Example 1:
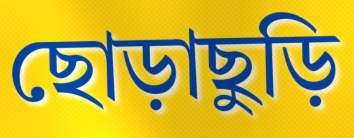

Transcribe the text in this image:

ছোড়াছুড়ি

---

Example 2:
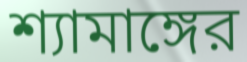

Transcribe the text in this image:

শ্যামাঙ্গের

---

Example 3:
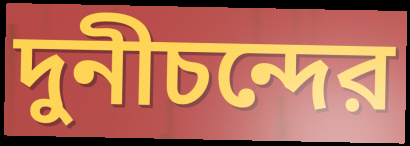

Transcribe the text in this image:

দুনীচন্দের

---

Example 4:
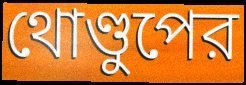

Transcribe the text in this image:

থোণ্ডুপের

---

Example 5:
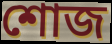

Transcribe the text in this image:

শোজ